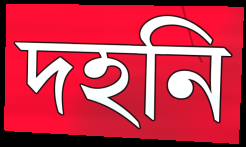
দহনি